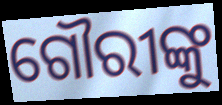
ଗୌରୀଙ୍କୁ